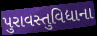
પુરાવસ્તુવિદ્યાના